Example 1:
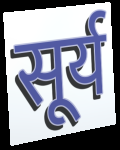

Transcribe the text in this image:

सूर्य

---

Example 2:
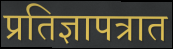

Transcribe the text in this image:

प्रतिज्ञापत्रात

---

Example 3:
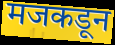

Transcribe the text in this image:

मजकडून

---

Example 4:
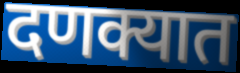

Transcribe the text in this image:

दणक्यात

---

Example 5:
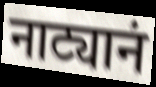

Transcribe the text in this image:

नाट्यानं